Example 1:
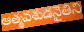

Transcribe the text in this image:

ఆత్మవశుడనైతిని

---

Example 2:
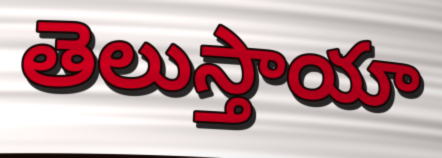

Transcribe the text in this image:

తెలుస్తాయా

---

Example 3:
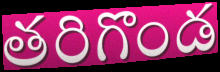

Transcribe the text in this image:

తరిగొండ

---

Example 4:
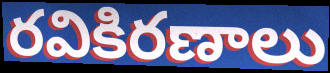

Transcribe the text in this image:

రవికిరణాలు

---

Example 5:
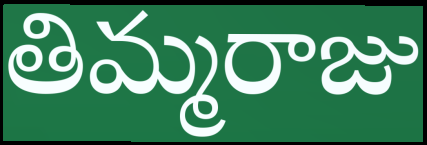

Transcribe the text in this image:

తిమ్మరాజు